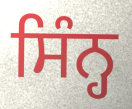
ਸਿੰਨ੍ਹ